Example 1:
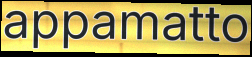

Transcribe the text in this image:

appamatto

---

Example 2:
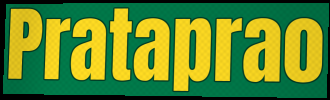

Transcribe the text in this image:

Prataprao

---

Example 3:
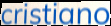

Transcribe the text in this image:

cristiano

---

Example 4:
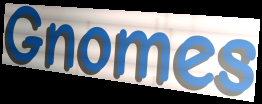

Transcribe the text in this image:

Gnomes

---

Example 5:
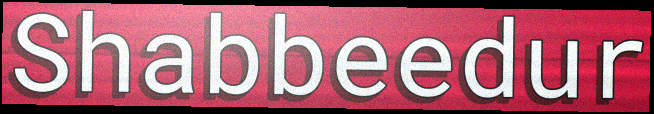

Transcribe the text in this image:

Shabbeedur